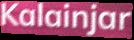
Kalainjar